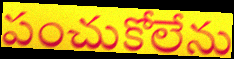
పంచుకోలేను